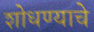
शोधण्याचे